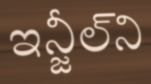
ఇన్జీల్‌ని